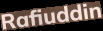
Rafiuddin